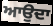
ਆਉਦਾ